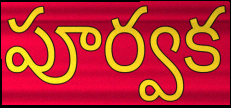
పూర్వక